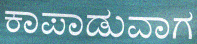
ಕಾಪಾಡುವಾಗ